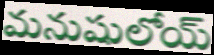
మనుషులోయ్